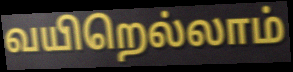
வயிறெல்லாம்